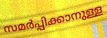
സമർപ്പിക്കാനുള്ള